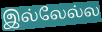
இல்லேல்ல